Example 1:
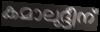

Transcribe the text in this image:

കമാലുദ്ദീന്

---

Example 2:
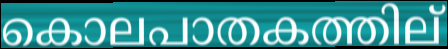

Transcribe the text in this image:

കൊലപാതകത്തില്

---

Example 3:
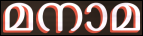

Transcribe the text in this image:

മനാമ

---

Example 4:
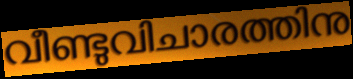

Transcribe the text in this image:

വീണ്ടുവിചാരത്തിനു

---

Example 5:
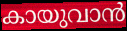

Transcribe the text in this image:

കായുവാൻ